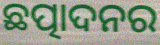
ଛତ୍ପାଦନର